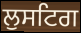
ਲੁਸਟਿਗ